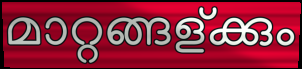
മാറ്റങ്ങള്ക്കും